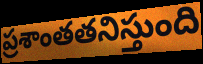
ప్రశాంతతనిస్తుంది